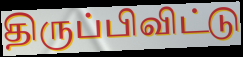
திருப்பிவிட்டு